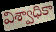
విశ్వాధికా